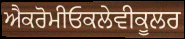
ਐਕਰੋਮੀਓਕਲੇਵੀਕੂਲਰ